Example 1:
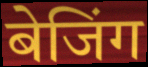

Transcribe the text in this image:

बेजिंग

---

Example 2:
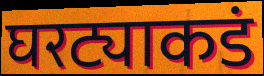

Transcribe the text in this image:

घरट्याकडं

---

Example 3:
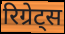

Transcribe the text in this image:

रिग्रेट्स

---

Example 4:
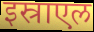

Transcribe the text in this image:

इस्राएल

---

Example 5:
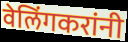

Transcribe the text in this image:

वेलिंगकरांनी